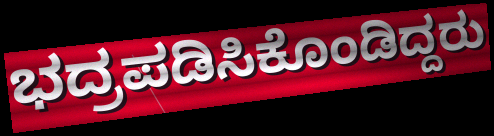
ಭದ್ರಪಡಿಸಿಕೊಂಡಿದ್ದರು